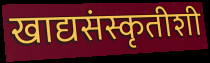
खाद्यसंस्कृतीशी